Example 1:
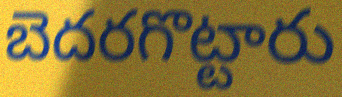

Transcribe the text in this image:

బెదరగొట్టారు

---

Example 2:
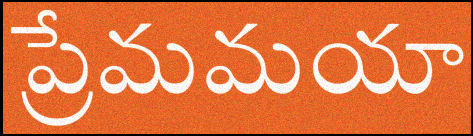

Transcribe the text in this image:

ప్రేమమయా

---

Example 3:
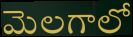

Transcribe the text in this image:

మెలగాలో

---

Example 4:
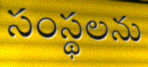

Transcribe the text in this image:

సంస్థలను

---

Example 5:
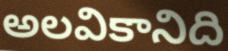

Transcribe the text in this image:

అలవికానిది